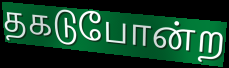
தகடுபோன்ற